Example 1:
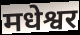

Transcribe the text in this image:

मधेश्वर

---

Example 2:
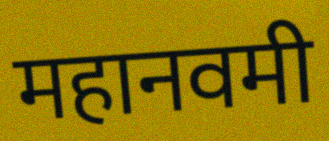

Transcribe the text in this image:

महानवमी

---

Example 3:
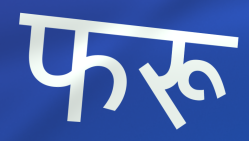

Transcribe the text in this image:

फरू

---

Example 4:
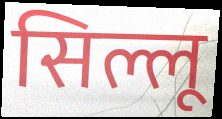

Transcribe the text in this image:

सिल्लू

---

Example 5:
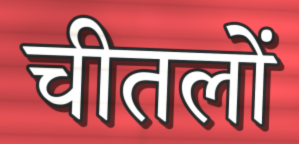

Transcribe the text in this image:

चीतलों